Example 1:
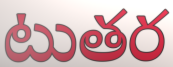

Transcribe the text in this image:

టుతర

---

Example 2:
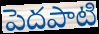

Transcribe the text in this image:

పెదపాటి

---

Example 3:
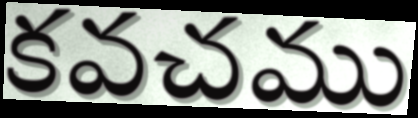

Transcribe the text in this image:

కవచము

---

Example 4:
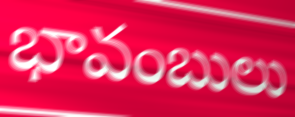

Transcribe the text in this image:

భావంబులు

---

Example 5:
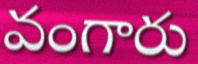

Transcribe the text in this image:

వంగారు